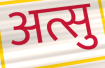
अत्सु